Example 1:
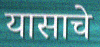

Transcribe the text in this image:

यासाचे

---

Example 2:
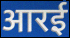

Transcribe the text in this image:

आरई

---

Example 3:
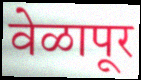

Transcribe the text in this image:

वेळापूर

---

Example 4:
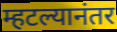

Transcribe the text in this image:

म्हटल्यानंतर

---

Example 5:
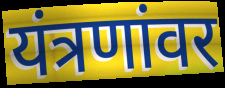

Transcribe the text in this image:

यंत्रणांवर